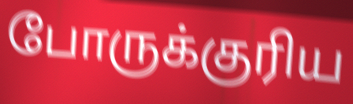
போருக்குரிய